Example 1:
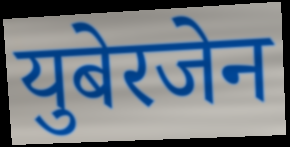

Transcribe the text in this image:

युबेरजेन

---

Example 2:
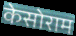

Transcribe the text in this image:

केसोराम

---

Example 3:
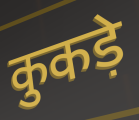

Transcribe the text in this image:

कुकड़े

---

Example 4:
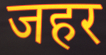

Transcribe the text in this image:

जहर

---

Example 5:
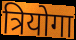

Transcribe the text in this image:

त्रियोगा